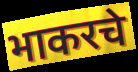
भाकरचे